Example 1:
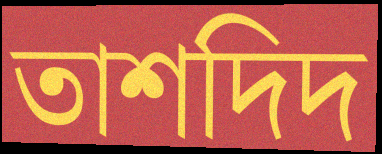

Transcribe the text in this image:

তাশদিদ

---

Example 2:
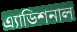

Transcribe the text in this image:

এ্যাডিশনাল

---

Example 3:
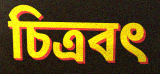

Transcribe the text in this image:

চিত্রবৎ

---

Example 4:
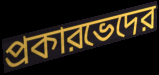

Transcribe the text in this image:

প্রকারভেদের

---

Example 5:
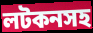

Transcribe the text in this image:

লটকনসহ